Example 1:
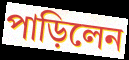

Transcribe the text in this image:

পাড়িলেন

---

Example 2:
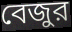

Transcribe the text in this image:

বেজুর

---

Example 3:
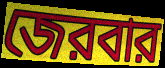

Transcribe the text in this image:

জেরবার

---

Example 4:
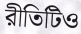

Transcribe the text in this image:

রীতিটিও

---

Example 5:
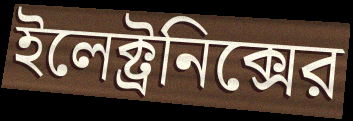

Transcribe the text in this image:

ইলেক্ট্রনিক্সের